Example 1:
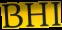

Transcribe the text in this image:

BHI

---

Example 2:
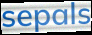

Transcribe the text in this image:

sepals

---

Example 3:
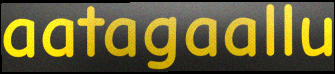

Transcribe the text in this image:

aatagaallu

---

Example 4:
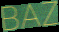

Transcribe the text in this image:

BAZ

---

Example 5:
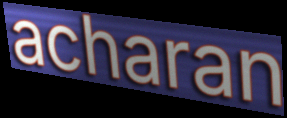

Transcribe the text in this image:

acharan